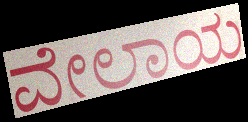
ವೇಲಾಯ